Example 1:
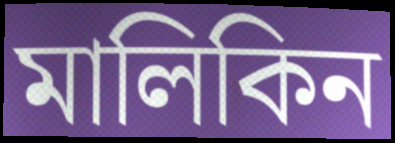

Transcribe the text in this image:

মালিকিন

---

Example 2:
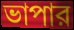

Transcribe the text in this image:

ভাপার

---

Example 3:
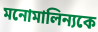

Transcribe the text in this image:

মনোমালিন্যকে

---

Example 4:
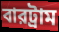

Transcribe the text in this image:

বারট্রাম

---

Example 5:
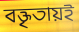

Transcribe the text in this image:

বক্তৃতায়ই